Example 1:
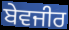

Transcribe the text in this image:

ਬੇਵਜੀਰ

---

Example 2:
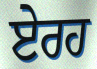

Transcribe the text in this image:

ਏਰਹ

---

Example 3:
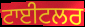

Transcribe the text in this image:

ਟਾਈਟਲਰ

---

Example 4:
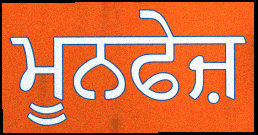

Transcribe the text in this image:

ਮੂਨਫੇਜ਼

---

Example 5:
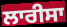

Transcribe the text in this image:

ਲਾਰੀਸਾ